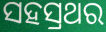
ସହସ୍ରଥର